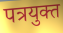
पत्रयुक्त